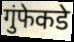
गुंफेकडे